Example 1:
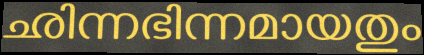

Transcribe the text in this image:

ഛിന്നഭിന്നമായതും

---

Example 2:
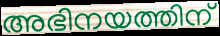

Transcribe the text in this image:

അഭിനയത്തിന്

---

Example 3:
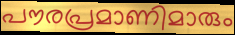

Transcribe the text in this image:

പൗരപ്രമാണിമാരും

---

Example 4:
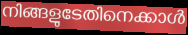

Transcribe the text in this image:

നിങ്ങളുടേതിനെക്കാൾ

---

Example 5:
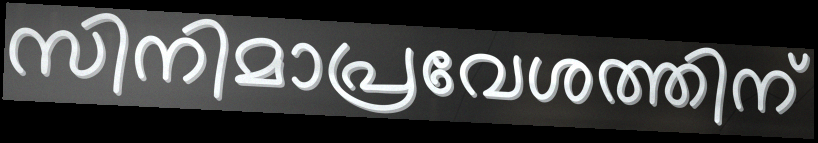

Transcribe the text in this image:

സിനിമാപ്രവേശത്തിന്